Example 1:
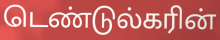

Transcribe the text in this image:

டெண்டுல்கரின்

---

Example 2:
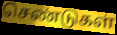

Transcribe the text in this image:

செண்டுகள்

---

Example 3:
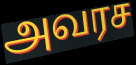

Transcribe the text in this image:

அவரச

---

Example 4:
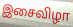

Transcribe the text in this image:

இசைவிழா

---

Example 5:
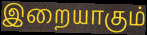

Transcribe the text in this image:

இறையாகும்